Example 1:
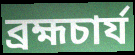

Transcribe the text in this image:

ব্রহ্মচার্য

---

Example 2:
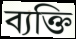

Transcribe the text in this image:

ব্যক্তি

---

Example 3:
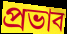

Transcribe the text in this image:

প্রভাব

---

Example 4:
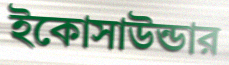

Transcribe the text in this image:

ইকোসাউন্ডার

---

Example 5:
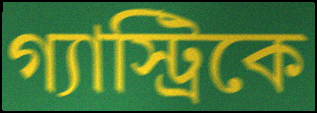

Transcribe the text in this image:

গ্যাস্ট্রিকে